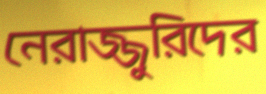
নেরাজ্জুরিদের